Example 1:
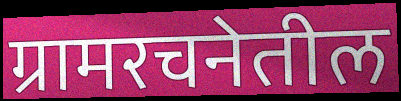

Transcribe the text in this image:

ग्रामरचनेतील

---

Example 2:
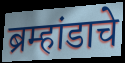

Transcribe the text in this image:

ब्रम्हांडाचे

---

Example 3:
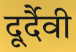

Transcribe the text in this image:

दूर्दैवी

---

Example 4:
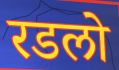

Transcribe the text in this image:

रडलो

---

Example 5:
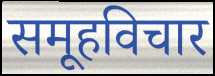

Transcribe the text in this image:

समूहविचार